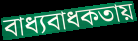
বাধ্যবাধকতায়